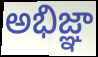
అభిజ్ఞా